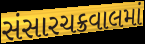
સંસારચક્રવાલમાં